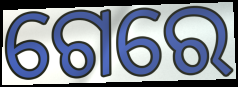
ଗେରେ